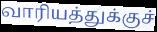
வாரியத்துக்குச்